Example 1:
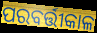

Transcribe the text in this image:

ପରବର୍ତ୍ତୀକାଳ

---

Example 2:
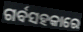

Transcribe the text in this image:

ଗର୍ବସହକାରେ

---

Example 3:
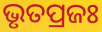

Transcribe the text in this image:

ଭୃତପ୍ରଜଃ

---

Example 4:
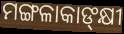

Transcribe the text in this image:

ମଙ୍ଗଳାକାଙ୍କ୍ଷୀ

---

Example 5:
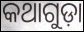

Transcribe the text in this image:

କଥାଗୁଡ଼ା